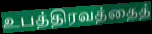
உபத்திரவத்தைத்